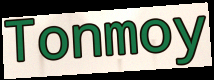
Tonmoy